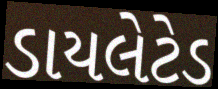
ડાયલેટેડ